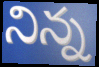
నిన్న